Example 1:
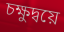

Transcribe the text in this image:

চক্ষুদ্বয়ে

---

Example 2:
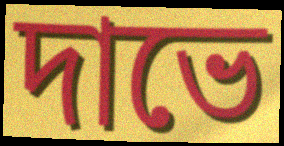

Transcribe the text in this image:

দাভে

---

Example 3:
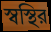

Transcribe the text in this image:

স্বস্থির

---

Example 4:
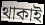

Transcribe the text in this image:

থাকাই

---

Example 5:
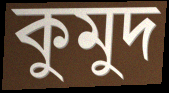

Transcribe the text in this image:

কুমুদ